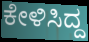
ಕೇಳಿಸಿದ್ದ